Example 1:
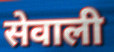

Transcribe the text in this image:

सेवाली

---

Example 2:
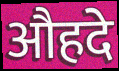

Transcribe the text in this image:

औहदे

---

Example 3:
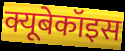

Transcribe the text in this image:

क्यूबेकॉइस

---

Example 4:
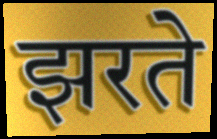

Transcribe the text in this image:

झरते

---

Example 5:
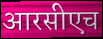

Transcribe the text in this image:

आरसीएच